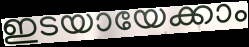
ഇടയായേക്കാം